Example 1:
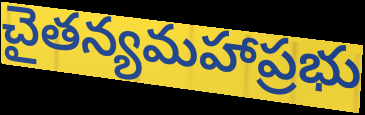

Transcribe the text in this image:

చైతన్యమహాప్రభు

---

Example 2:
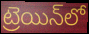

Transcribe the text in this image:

ట్రెయిన్‌లో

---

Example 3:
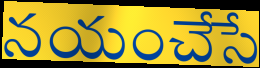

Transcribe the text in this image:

నయంచేసే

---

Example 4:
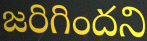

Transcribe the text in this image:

జరిగిందని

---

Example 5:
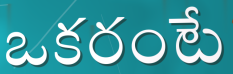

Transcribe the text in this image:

ఒకరంటే